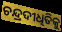
ଚନ୍ଦ୍ରଦୀଧିତିକୁ